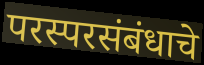
परस्परसंबंधाचे